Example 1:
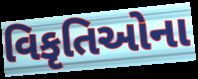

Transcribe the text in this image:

વિકૃતિઓના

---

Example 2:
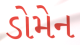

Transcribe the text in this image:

ડોમેન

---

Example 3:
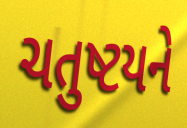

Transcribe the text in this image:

ચતુષ્ટયને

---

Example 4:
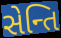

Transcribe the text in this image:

સેન્તિ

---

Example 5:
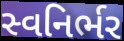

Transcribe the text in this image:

સ્વનિર્ભર